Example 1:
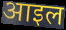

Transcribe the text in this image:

आइल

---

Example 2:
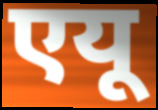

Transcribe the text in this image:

एयू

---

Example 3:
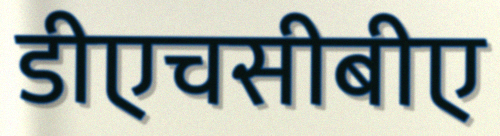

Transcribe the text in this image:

डीएचसीबीए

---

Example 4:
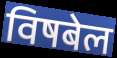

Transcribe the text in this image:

विषबेल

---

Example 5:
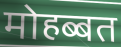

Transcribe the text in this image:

मोहब्बत